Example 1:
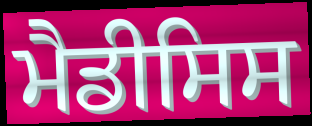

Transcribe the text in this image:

ਮੈਡੀਸਿਸ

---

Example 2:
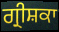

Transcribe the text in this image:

ਗ੍ਰੀਸ਼ਕਾ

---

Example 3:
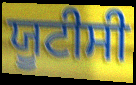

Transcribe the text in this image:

ਯੂਟੀਸੀ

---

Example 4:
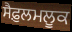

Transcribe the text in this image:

ਸੈਫ਼ੁਲਮਲੂਕ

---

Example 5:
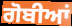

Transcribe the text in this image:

ਗੋਬੀਆਂ